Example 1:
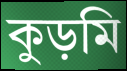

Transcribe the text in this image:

কুড়মি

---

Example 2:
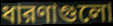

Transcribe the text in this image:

ধারণাগুলো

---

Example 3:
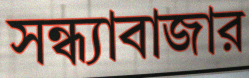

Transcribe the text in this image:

সন্ধ্যাবাজার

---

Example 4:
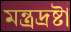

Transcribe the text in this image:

মন্ত্রদ্রষ্টা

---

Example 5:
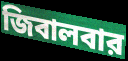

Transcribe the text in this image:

জিবালবার